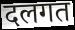
दलगत